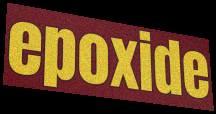
epoxide